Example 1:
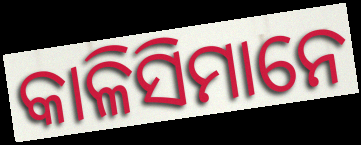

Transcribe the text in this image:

କାଳିସିମାନେ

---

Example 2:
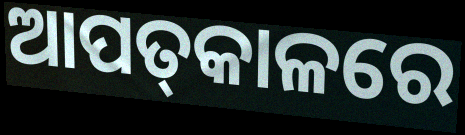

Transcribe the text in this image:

ଆପତ୍‌କାଳରେ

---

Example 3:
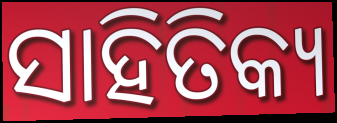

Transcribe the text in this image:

ସାହିତିକ୍ୟ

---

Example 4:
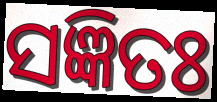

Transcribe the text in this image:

ସଜ୍ଞିତଃ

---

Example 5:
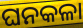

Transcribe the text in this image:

ଘନକଳା